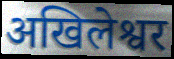
अखिलेश्वर